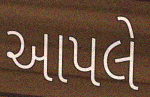
આપલે